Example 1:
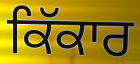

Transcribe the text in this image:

ਕਿੱਕਾਰ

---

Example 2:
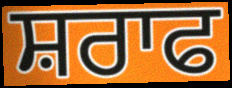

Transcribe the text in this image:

ਸ਼ਰਾਫ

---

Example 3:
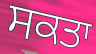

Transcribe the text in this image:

ਸਕਤਾ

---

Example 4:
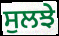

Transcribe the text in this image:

ਸੁਲਝੇ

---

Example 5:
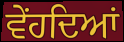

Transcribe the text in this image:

ਵੇਂਹਦਿਆਂ